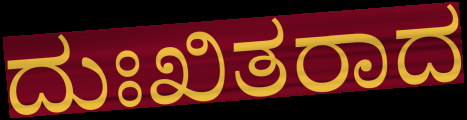
ದುಃಖಿತರಾದ